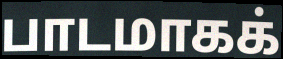
பாடமாகக்